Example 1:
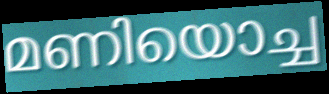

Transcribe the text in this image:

മണിയൊച്ച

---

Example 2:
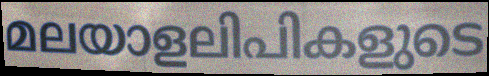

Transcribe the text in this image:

മലയാളലിപികളുടെ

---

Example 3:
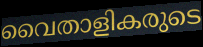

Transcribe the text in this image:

വൈതാളികരുടെ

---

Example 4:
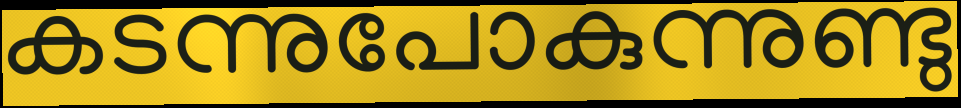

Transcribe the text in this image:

കടന്നുപോകുന്നുണ്ടു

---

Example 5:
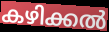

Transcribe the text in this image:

കഴിക്കൽ